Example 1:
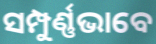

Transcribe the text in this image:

ସମ୍ପୁର୍ଣ୍ଣଭାବେ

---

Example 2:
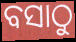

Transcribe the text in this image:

ବସାଠୁ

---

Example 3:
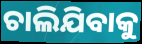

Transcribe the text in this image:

ଚାଲିଯିବାକୁ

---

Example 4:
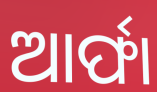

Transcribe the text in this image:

ଆର୍ଫା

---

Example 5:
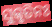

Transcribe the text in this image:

ସୁକୃତିନଃ